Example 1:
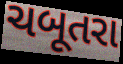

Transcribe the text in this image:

ચબૂતરા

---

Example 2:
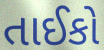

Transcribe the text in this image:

તાઈકો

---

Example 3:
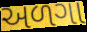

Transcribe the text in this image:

અળગા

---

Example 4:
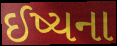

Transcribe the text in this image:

ઈષ્યના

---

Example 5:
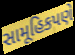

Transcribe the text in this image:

સામૂહિકપણે